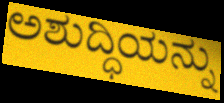
ಅಶುದ್ಧಿಯನ್ನು